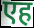
एह